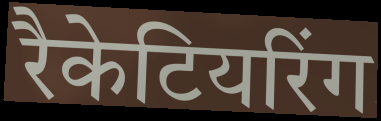
रैकेटियरिंग